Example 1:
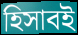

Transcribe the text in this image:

হিসাবই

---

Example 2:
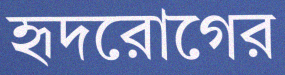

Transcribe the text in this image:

হৃদরোগের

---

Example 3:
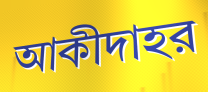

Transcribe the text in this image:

আকীদাহর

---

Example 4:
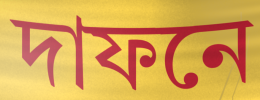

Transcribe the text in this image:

দাফনে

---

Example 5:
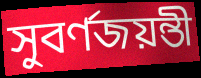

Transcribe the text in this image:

সুবর্ণজয়ন্তী